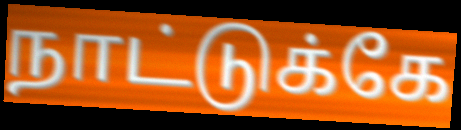
நாட்டுக்கே